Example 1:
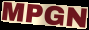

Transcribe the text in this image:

MPGN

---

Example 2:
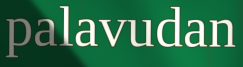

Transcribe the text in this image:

palavudan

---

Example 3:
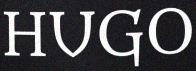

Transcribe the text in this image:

HUGO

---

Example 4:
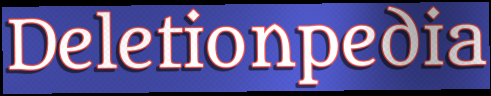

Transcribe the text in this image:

Deletionpedia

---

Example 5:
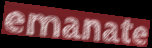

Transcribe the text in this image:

emanate